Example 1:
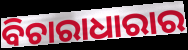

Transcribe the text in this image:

ବିଚାରାଧାରାର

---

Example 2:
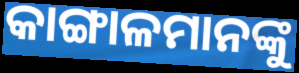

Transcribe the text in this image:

କାଙ୍ଗାଳମାନଙ୍କୁ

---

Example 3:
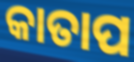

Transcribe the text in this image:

କାତାପ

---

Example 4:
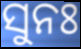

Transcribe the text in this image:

ସୁନଃ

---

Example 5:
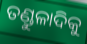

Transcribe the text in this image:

ତଣ୍ଡୁଳାଦିକୁ